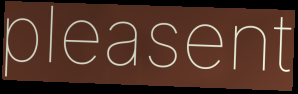
pleasent